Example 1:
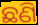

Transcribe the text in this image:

ଛଣି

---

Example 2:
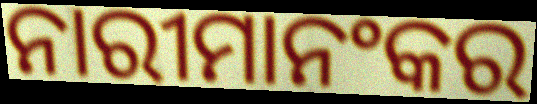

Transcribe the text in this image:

ନାରୀମାନଂକର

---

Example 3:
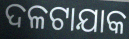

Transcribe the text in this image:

ଦଳଟାଯାକ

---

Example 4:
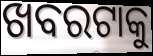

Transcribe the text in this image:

ଖବରଟାକୁ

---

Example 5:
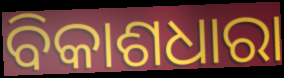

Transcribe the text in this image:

ବିକାଶଧାରା